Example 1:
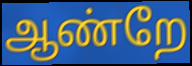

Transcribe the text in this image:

ஆண்றே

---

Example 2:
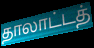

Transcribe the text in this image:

தாலாட்டத்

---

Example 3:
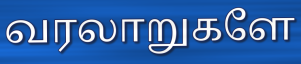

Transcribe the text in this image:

வரலாறுகளே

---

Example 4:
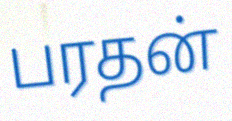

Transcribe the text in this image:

பரதன்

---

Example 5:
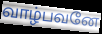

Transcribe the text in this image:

வாழ்பவனே